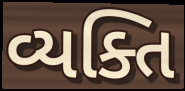
વ્યક્તિ